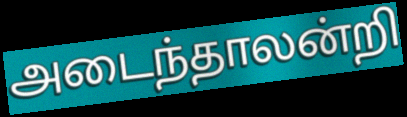
அடைந்தாலன்றி